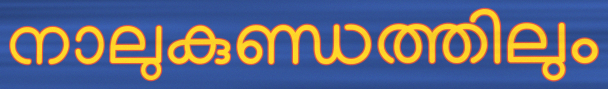
നാലുകുണ്ഡത്തിലും